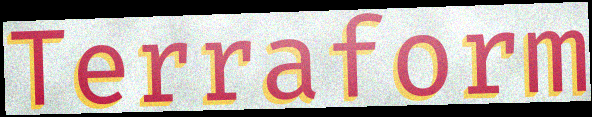
Terraform